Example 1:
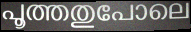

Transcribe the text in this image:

പൂത്തതുപോലെ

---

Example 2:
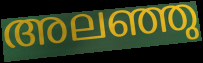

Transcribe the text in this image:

അലഞ്ഞു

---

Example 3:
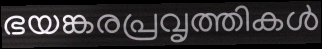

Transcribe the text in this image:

ഭയങ്കരപ്രവൃത്തികൾ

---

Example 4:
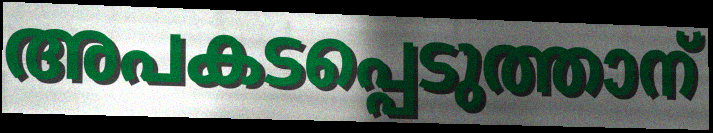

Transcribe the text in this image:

അപകടപ്പെടുത്താന്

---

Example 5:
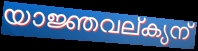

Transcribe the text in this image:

യാജ്ഞവല്ക്യന്